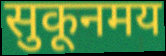
सुकूनमय